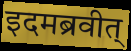
इदमब्रवीत्